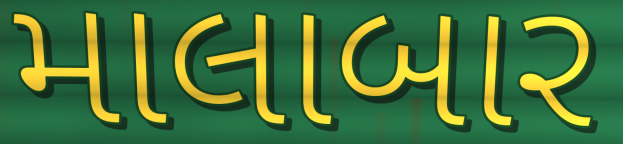
માલાબાર